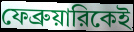
ফেব্রুয়ারিকেই